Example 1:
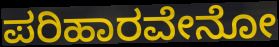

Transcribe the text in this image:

ಪರಿಹಾರವೇನೋ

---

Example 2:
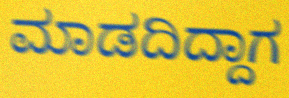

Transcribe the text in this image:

ಮಾಡದಿದ್ದಾಗ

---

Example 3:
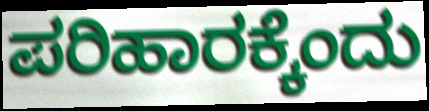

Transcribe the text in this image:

ಪರಿಹಾರಕ್ಕೆಂದು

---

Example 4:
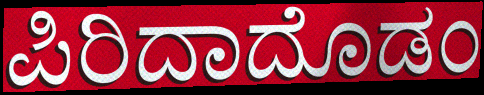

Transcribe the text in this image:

ಪಿರಿದಾದೊಡಂ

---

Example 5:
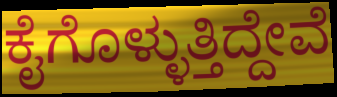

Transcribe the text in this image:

ಕೈಗೊಳ್ಳುತ್ತಿದ್ದೇವೆ